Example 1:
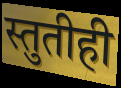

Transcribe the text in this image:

स्तुतीही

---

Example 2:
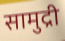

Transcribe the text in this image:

सामुद्री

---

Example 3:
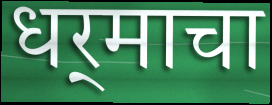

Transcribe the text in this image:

धर्माचा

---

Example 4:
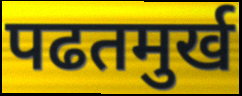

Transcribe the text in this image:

पढतमुर्ख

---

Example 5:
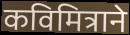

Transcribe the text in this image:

कविमित्राने